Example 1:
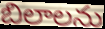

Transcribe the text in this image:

బిలాలను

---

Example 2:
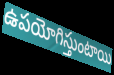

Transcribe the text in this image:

ఉపయోగిస్తుంటాయి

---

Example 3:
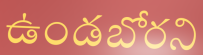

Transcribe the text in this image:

ఉండబోరని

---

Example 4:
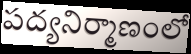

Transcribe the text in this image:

పద్యనిర్మాణంలో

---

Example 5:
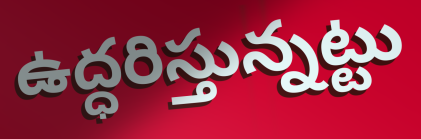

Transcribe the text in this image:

ఉద్ధరిస్తున్నట్టు